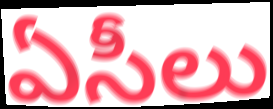
ఏసీలు